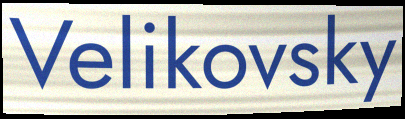
Velikovsky